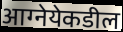
आग्नेयेकडील